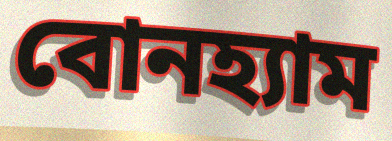
বোনহ্যাম